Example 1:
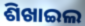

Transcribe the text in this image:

ଶିଖାଇଲ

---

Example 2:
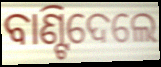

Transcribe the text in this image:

ବାଣ୍ଟିଦେଲେ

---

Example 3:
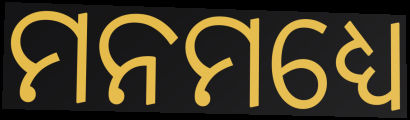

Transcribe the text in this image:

ମନମଧ୍ୟେ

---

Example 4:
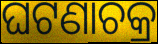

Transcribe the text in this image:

ଘଟଣାଚକ୍ର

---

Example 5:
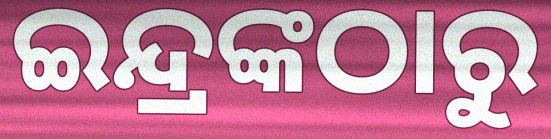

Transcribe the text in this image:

ଇନ୍ଦ୍ରଙ୍କଠାରୁ